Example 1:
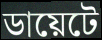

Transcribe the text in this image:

ডায়েটে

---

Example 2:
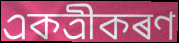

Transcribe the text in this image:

একত্ৰীকৰণ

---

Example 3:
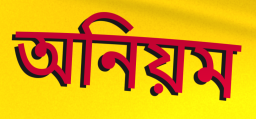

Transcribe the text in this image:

অনিয়ম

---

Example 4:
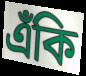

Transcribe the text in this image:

এঁকি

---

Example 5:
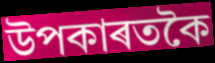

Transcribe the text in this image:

উপকাৰতকৈ